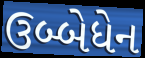
ઉબ્બેધેન